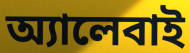
অ্যালেবাই